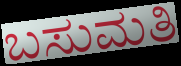
ಬಸುಮತಿ